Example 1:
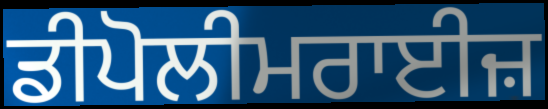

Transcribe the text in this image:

ਡੀਪੋਲੀਮਰਾਈਜ਼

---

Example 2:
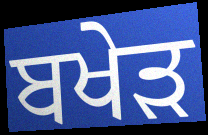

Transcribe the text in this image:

ਬਖੇੜ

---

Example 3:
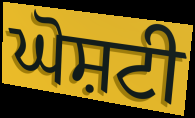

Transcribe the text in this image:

ਘੋਸ਼ਟੀ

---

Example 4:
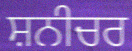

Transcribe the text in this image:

ਸ਼ਨੀਚਰ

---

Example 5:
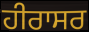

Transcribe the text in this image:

ਹੀਰਾਸਰ